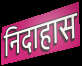
निदाहास